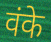
वंके